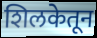
शिलकेतून